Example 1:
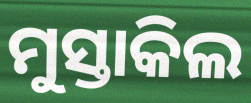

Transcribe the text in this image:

ମୁସ୍ତାକିଲ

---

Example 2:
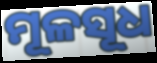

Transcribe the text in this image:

ମୂଳସୂଧ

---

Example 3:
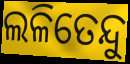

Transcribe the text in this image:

ଲଳିତେନ୍ଦୁ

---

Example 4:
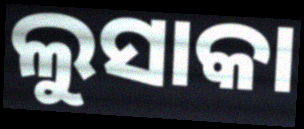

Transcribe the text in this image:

ଲୁସାକା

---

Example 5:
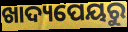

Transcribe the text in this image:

ଖାଦ୍ୟପେୟରୁ